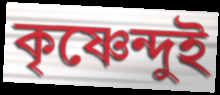
কৃষ্ণেন্দুই